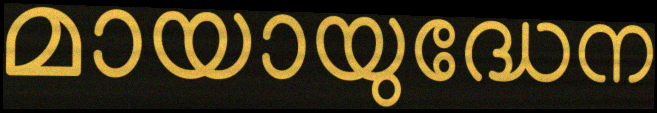
മായായുദ്ധേന